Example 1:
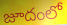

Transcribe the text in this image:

జూదంలో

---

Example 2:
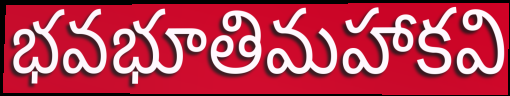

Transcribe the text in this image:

భవభూతిమహాకవి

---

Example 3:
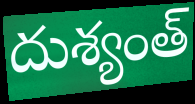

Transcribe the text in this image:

దుశ్యంత్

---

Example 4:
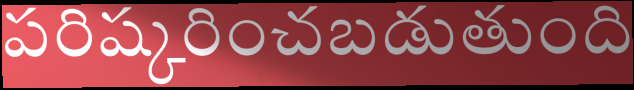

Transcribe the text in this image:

పరిష్కరించబడుతుంది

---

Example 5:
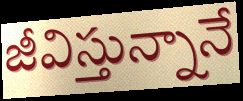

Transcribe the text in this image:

జీవిస్తున్నానే